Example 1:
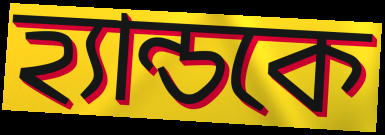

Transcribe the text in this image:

হ্যান্ডকে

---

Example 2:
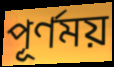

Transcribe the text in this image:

পূর্ণময়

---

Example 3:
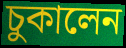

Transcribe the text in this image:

চুকালেন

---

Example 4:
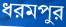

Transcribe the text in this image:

ধরমপুর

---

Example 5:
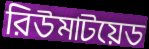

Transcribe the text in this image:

রিউমাটয়েড